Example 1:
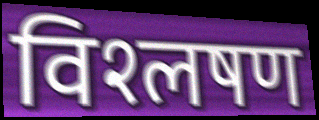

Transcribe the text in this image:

विश्लषण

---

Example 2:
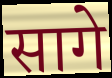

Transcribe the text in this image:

सागे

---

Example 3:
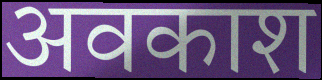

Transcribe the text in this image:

अवकाश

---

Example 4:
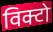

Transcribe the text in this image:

विक्टो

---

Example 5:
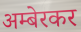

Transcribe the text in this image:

अम्बेरकर